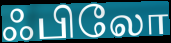
ஃபிலோ